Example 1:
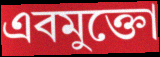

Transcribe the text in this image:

এবমুক্তো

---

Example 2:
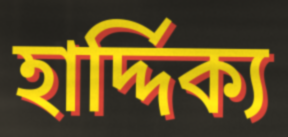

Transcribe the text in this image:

হার্দ্দিক্য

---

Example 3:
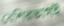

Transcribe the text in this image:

বেশিরভাগই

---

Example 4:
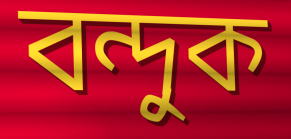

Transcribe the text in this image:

বন্দুক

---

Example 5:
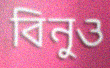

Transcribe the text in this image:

বিনুও